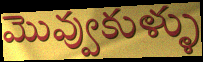
మొవ్వుకుళ్ళు